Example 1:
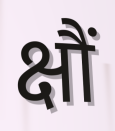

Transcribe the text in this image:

क्षौं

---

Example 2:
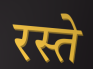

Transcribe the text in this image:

रस्ते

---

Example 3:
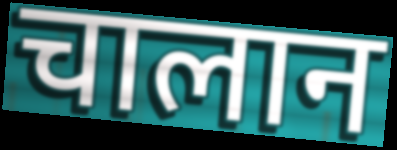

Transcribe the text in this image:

चालान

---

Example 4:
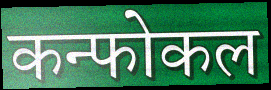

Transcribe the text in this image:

कन्फोकल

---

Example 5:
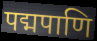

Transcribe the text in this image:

पद्मपाणि